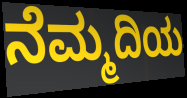
ನೆಮ್ಮದಿಯ